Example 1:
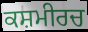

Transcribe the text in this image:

ਕਸ਼ਮੀਰਚ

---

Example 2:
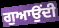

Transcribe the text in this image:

ਗੁਆਉਂਦੀ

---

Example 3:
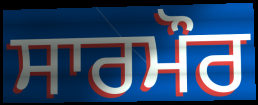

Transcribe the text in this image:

ਸਾਰਮੌਰ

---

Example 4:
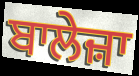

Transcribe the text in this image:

ਬਾਲੇਜ਼ਾ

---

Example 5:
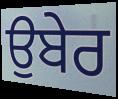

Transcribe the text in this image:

ਉਬੇਰ